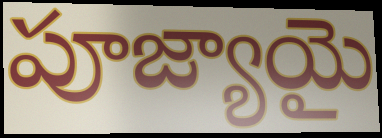
పూజ్యాయై